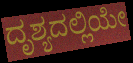
ದೃಶ್ಯದಲ್ಲಿಯೇ